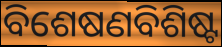
ବିଶେଷଣବିଶିଷ୍ଟ